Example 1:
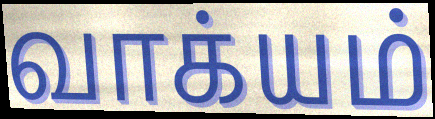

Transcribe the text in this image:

வாக்யம்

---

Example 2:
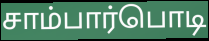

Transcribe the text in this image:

சாம்பார்பொடி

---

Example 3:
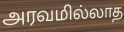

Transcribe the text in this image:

அரவமில்லாத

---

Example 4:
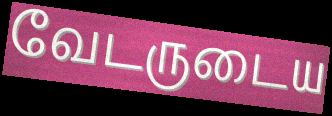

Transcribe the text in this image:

வேடருடைய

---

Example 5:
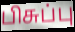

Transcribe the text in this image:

பிசுப்பு